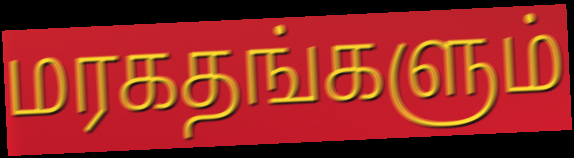
மரகதங்களும்